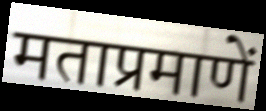
मताप्रमाणें